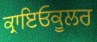
ਕ੍ਰਾਇਓਕੂਲਰ